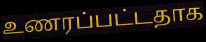
உணரப்பட்டதாக